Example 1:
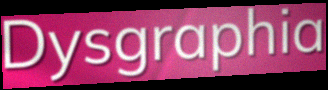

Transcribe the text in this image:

Dysgraphia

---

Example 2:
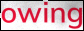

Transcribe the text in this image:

owing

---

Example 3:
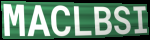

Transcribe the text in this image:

MACLBSI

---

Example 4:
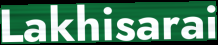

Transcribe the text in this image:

Lakhisarai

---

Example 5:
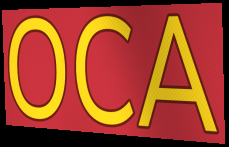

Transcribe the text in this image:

OCA